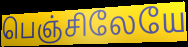
பெஞ்சிலேயே